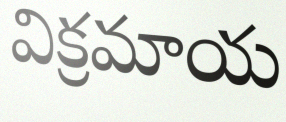
విక్రమాయ